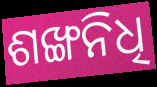
ଶଙ୍ଖନିଧି